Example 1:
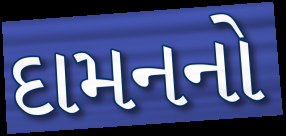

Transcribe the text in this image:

દામનનો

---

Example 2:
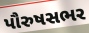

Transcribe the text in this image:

પૌરુષસભર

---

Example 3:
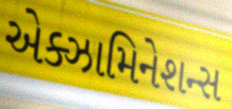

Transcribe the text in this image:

એક્ઝામિનેશન્સ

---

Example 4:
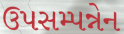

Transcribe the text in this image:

ઉપસમ્પન્નેન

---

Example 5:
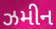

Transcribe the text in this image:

ઝમીન